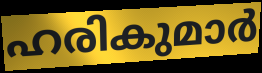
ഹരികുമാർ